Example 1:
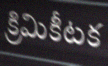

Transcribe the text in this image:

క్రిమికీటక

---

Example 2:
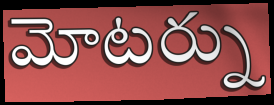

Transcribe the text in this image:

మోటర్ను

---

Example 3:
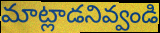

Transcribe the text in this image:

మాట్లాడనివ్వండి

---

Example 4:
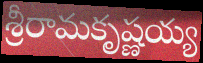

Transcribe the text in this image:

శ్రీరామకృష్ణయ్య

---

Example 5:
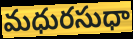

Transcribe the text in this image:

మధురసుధా